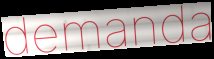
demanda